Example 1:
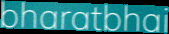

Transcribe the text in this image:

bharatbhai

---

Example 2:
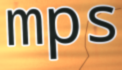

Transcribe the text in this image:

mps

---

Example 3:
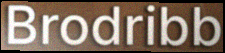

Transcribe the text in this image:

Brodribb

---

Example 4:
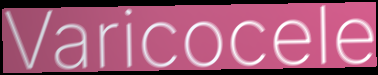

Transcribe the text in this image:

Varicocele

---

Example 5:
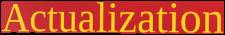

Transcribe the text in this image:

Actualization